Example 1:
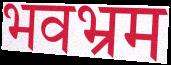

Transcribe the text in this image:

भवभ्रम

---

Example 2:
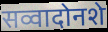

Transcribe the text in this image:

सव्वादोनशे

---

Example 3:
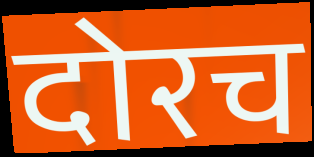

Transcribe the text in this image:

दोरच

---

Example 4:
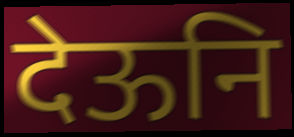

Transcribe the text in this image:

देऊनि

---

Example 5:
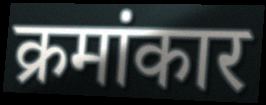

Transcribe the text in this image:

क्रमांकार